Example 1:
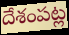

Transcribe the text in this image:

దేశంపట్ల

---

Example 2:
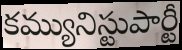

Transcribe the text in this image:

కమ్యునిస్టుపార్టీ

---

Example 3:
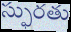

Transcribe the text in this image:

స్ఫురతు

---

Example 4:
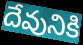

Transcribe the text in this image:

దేవునికి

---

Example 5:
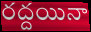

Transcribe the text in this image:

రద్దయినా